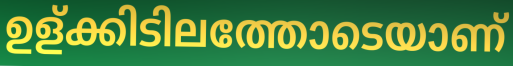
ഉള്ക്കിടിലത്തോടെയാണ്